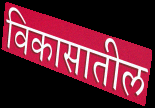
विकासातील